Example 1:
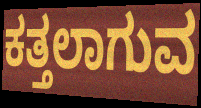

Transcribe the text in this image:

ಕತ್ತಲಾಗುವ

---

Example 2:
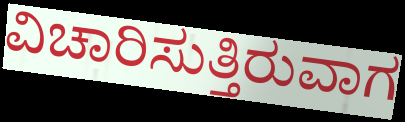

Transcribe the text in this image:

ವಿಚಾರಿಸುತ್ತಿರುವಾಗ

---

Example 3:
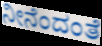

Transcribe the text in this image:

ನೀನೆಂದಂತೆ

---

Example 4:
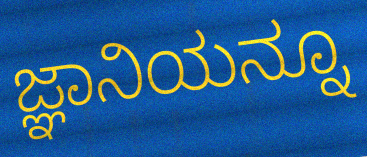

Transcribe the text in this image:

ಜ್ಞಾನಿಯನ್ನೂ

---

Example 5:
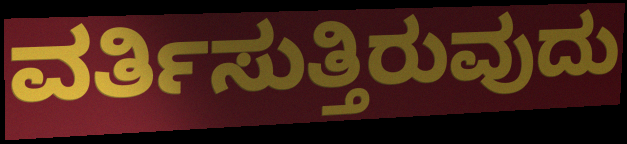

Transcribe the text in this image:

ವರ್ತಿಸುತ್ತಿರುವುದು